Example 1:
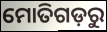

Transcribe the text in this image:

ମୋତିଗଡ଼ରୁ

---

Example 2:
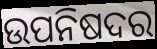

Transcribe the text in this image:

ଉପନିଷଦର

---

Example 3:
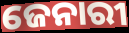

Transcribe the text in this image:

ଜେନାରୀ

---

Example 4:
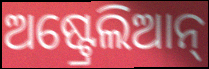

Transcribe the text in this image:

ଅଷ୍ଟ୍ରେଲିଆନ୍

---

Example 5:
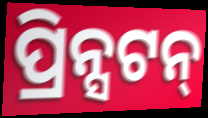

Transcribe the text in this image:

ପ୍ରିନ୍ସଟନ୍